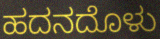
ಹದನದೊಳು